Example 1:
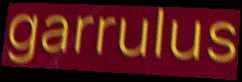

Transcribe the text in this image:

garrulus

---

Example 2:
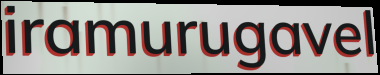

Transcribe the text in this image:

iramurugavel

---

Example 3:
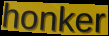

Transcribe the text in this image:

honker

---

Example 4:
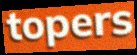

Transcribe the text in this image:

topers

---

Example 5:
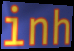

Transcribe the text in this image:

inh